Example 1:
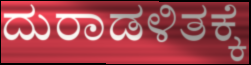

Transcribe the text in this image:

ದುರಾಡಳಿತಕ್ಕೆ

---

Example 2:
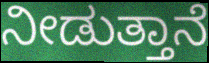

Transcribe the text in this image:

ನೀಡುತ್ತಾನೆ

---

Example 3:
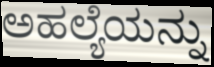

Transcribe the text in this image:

ಅಹಲ್ಯೆಯನ್ನು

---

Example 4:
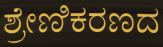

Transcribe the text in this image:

ಶ್ರೇಣಿಕರಣದ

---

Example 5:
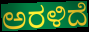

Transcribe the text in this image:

ಅರಳಿದೆ